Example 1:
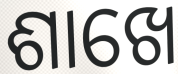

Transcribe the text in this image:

ଶାଖେ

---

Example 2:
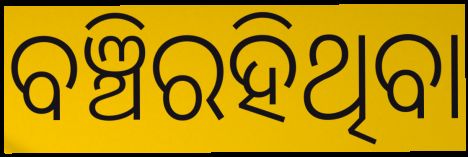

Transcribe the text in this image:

ବଞ୍ଚିରହିଥିବା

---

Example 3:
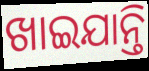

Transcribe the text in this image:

ଖାଇଯାନ୍ତି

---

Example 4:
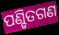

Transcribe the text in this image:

ପଣ୍ଡିତଗଣ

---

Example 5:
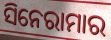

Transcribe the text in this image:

ସିନେରାମାର